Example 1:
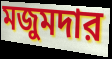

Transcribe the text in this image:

মজুমদার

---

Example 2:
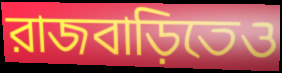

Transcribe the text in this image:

রাজবাড়িতেও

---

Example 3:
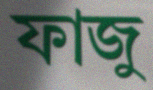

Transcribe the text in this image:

ফাজু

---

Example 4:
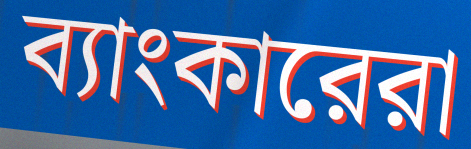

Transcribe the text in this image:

ব্যাংকারেরা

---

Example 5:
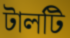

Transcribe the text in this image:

টালটি